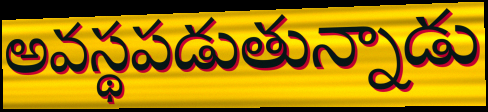
అవస్థపడుతున్నాడు